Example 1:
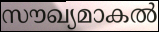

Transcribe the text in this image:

സൗഖ്യമാകൽ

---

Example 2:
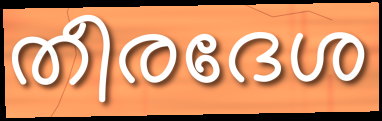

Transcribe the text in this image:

തീരദേശ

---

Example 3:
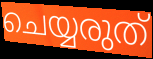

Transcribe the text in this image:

ചെയ്യരുത്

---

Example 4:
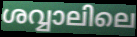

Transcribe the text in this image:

ശവ്വാലിലെ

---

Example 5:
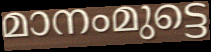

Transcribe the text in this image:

മാനംമുട്ടെ